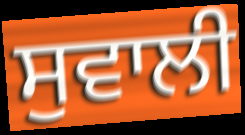
ਸੁਵਾਲੀ